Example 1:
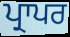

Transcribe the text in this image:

ਪ੍ਰਾਪਰ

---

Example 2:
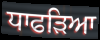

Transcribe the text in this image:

ਧਾਫੜਿਆ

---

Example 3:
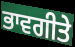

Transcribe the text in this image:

ਭਾਵਗੀਤੇ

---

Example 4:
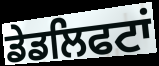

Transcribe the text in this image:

ਡੇਡਲਿਫਟਾਂ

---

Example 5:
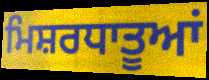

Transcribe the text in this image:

ਮਿਸ਼ਰਧਾਤੂਆਂ